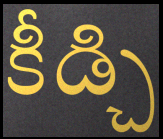
కీడ్చి